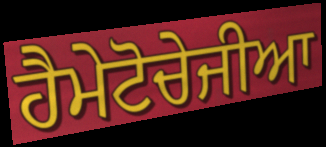
ਹੈਮੇਟੋਚੇਜੀਆ